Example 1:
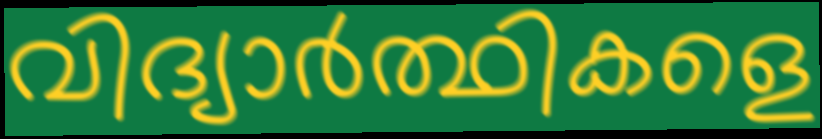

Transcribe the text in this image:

വിദ്യാർത്ഥികളെ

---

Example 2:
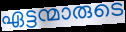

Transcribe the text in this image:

ഏട്ടന്മാരുടെ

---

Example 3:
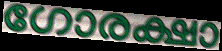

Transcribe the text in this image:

ഗോരക്ഷാ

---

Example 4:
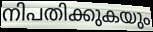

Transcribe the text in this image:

നിപതിക്കുകയും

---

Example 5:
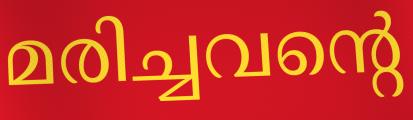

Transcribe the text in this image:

മരിച്ചവന്റെ